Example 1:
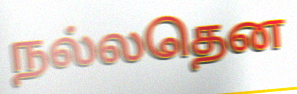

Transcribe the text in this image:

நல்லதென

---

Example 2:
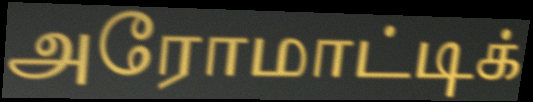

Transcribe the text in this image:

அரோமாட்டிக்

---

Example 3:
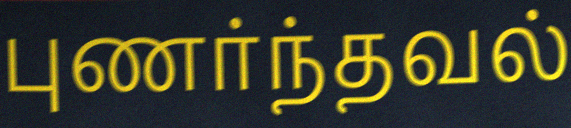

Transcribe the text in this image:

புணர்ந்தவல்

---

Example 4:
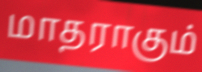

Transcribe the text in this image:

மாதராகும்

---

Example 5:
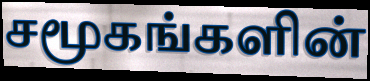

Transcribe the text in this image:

சமூகங்களின்